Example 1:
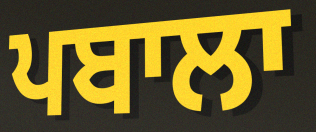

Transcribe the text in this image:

ਪਬਾਲਾ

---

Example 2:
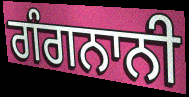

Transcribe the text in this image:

ਗੰਗਨਾਨੀ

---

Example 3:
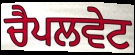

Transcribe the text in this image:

ਚੈਪਲਵੇਟ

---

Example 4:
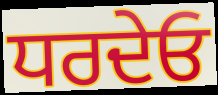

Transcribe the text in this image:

ਧਰਦੇਓ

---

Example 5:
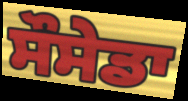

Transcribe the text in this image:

ਸੌਸੇਡਾ